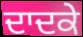
ਦਾਦਕੇ